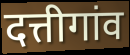
दत्तीगांव